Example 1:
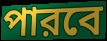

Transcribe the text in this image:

পারবে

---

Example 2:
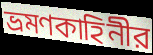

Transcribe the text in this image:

ভ্রমণকাহিনীর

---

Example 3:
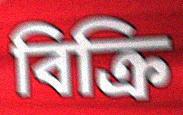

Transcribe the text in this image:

বিক্রি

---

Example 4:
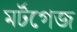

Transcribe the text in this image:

মর্টগেজ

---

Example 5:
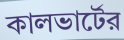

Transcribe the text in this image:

কালভার্টের